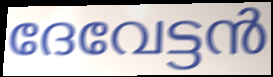
ദേവേട്ടൻ